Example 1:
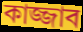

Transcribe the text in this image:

কাজ্জাব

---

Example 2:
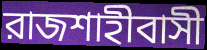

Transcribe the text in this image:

রাজশাহীবাসী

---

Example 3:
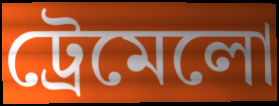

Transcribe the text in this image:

ট্রেমেলো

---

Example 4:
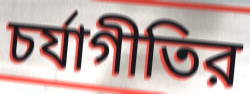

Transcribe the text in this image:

চর্যাগীতির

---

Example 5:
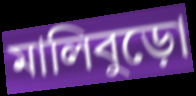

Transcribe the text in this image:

মালিবুড়ো